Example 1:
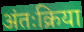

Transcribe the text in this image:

अंतःक्रिया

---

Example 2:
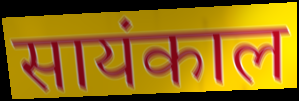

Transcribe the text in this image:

सायंकाल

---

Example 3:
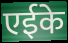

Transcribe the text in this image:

एईके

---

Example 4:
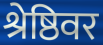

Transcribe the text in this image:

श्रेष्ठिवर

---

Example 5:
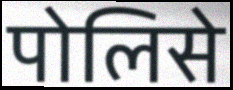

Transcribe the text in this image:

पोलिसे